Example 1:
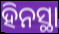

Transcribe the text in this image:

ହିନସ୍ଥା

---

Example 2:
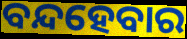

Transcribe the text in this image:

ବନ୍ଦହେବାର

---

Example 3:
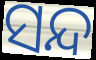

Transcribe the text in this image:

ସନ୍ଦ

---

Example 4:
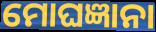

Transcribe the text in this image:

ମୋଘଜ୍ଞାନା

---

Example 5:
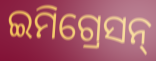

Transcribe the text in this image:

ଇମିଗ୍ରେସନ୍